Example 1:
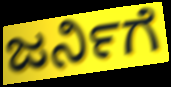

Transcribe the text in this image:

ಜರ್ನಿಗೆ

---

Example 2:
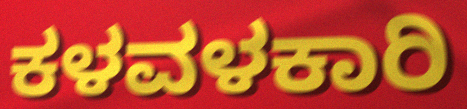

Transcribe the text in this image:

ಕಳವಳಕಾರಿ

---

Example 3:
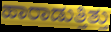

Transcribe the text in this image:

ಹಾರಾಡುತ್ತಿತ್ತು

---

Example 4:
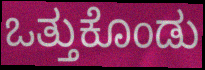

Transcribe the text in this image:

ಒತ್ತುಕೊಂಡು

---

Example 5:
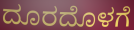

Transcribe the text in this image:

ದೂರದೊಳಗೆ